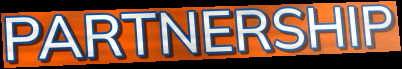
PARTNERSHIP